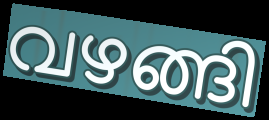
വഴങ്ങി